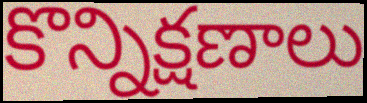
కొన్నిక్షణాలు